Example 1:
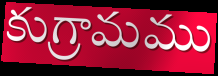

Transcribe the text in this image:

కుగ్రామము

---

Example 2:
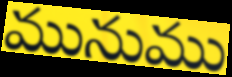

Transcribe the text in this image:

మునుము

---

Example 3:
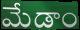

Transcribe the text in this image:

మేడాం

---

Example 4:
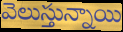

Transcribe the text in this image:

వెలుస్తున్నాయి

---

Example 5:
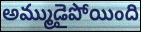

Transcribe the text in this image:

అమ్ముడైపోయింది